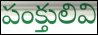
పంక్తులివి